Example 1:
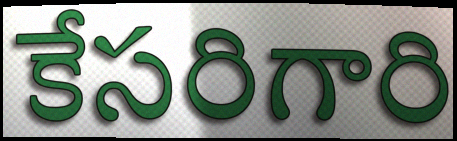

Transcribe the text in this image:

కేసరిగారి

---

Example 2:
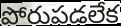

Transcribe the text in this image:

పోరుపడలేక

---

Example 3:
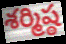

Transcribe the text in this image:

శర్మిష్ఠ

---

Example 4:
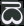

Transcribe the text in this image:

దె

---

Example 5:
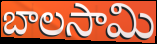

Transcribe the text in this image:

బాలసామి